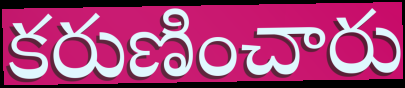
కరుణించారు